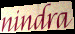
nindra